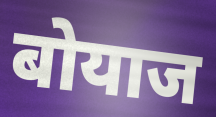
बोयाज